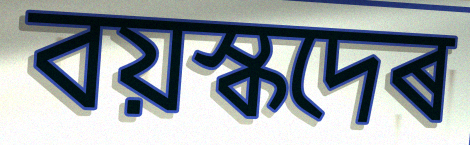
বয়স্কদেৰ